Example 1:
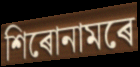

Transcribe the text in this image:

শিৰোনামৰে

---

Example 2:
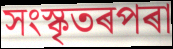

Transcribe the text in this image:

সংস্কৃতৰপৰা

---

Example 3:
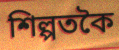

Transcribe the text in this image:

শিল্পতকৈ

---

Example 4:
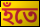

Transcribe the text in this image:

হঁতে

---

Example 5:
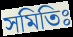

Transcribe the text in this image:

সমিতিঃ